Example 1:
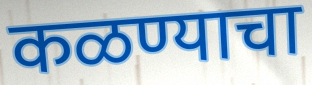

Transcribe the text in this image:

कळण्याचा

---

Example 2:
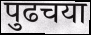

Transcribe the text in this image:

पुढचया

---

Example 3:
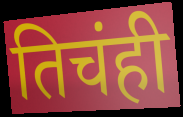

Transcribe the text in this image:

तिचंही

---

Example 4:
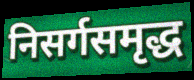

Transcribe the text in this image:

निसर्गसमृद्ध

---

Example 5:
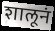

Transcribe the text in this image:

शालूनं